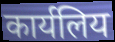
कार्यलिय